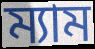
ম্যাম